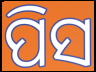
ପିସ